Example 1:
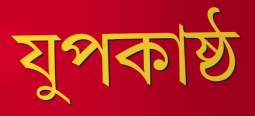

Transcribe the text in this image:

যুপকাষ্ঠ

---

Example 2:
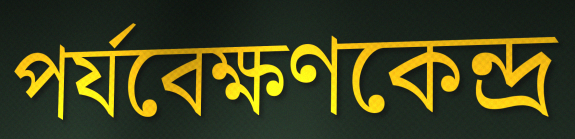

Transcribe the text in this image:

পর্যবেক্ষণকেন্দ্র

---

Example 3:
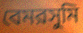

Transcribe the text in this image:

বেমরসুমি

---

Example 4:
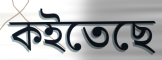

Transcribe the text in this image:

কইতেছে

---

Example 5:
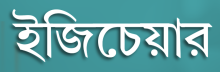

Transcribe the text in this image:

ইজিচেয়ার